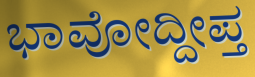
ಭಾವೋದ್ದೀಪ್ತ